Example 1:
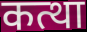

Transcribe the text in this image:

कत्था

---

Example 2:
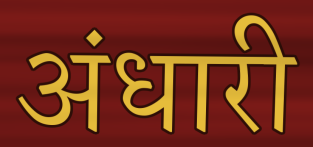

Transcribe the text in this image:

अंधारी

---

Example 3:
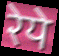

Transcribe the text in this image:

रेये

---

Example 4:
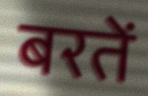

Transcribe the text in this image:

बरतें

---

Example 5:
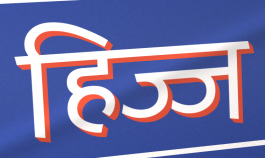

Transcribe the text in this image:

हिज्ज